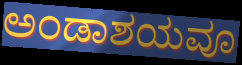
ಅಂಡಾಶಯವೂ